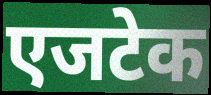
एजटेक